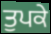
ਤੁਪਕੇ